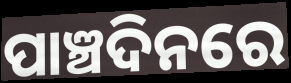
ପାଞ୍ଚଦିନରେ